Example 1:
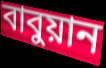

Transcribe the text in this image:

বাবুয়ান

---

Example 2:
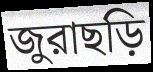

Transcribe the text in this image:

জুরাছড়ি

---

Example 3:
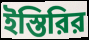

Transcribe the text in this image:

ইস্তিরির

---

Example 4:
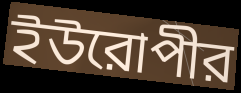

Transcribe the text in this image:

ইউরোপীর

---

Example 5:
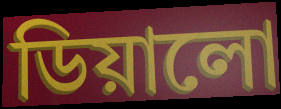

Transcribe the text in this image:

ডিয়ালো